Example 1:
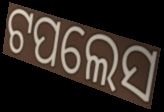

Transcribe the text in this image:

ଟପଲେସ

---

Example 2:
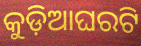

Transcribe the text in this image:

କୁଡ଼ିଆଘରଟି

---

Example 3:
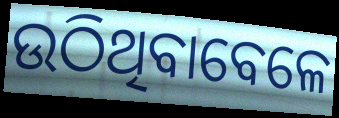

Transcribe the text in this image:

ଉଠିଥିବାବେଳେ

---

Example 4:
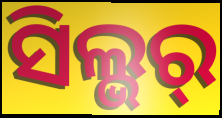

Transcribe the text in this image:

ସିଲ୍ଭର୍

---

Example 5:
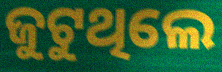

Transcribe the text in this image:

ଜୁଟୁଥିଲେ